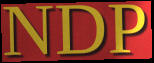
NDP